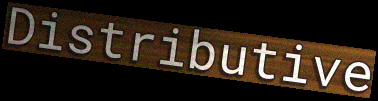
Distributive